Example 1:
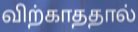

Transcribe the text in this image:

விற்காததால்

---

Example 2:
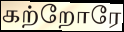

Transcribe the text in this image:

கற்றோரே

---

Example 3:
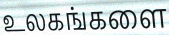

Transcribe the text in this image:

உலகங்களை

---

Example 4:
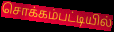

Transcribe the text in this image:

சொக்கம்பட்டியில்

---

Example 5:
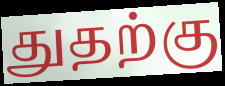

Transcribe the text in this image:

துதற்கு